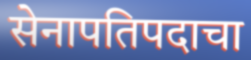
सेनापतिपदाचा